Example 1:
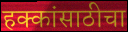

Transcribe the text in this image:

हक्कांसाठीचा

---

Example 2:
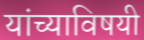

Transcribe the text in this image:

यांच्याविषयी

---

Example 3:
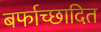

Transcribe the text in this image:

बर्फाच्छादित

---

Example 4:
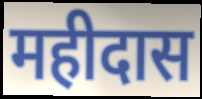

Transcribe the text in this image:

महीदास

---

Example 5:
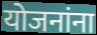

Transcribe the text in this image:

योजनांना